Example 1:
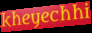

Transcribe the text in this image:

kheyechhi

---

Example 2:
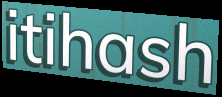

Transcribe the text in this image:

itihash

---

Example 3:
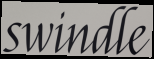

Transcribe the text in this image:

swindle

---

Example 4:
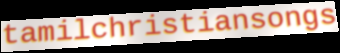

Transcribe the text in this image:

tamilchristiansongs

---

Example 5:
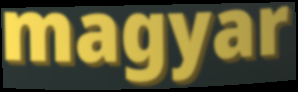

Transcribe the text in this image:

magyar